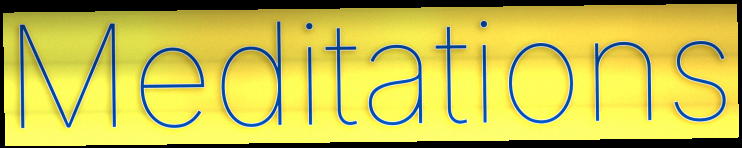
Meditations